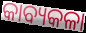
କାବ୍ୟକଳା